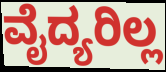
ವೈದ್ಯರಿಲ್ಲ